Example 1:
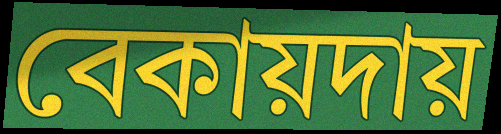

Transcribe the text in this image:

বেকায়দায়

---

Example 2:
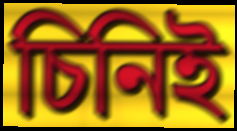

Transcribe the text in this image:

চিনিই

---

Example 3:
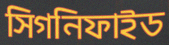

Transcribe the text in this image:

সিগনিফাইড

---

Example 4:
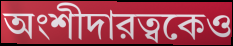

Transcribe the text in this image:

অংশীদারত্বকেও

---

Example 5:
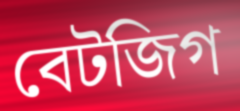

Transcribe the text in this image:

বেটজিগ